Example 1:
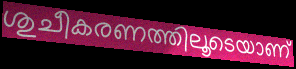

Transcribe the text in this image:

ശുചീകരണത്തിലൂടെയാണ്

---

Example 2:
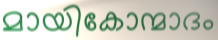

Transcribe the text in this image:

മായികോന്മാദം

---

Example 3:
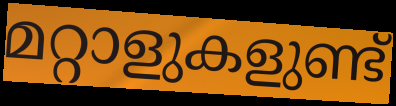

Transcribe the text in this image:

മറ്റാളുകളുണ്ട്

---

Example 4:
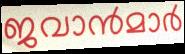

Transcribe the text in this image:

ജവാൻമാർ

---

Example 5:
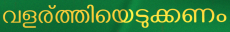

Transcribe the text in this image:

വളര്ത്തിയെടുക്കണം